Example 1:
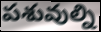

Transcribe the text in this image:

పశువుల్ని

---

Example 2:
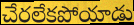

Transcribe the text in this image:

చేరలేకపోయాడు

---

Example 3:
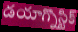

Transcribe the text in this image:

డయాగ్నొస్టిక్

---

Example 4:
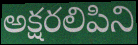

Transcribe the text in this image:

అక్షరలిపిని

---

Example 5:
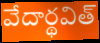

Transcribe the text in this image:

వేదార్థవిత్